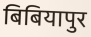
बिबियापुर